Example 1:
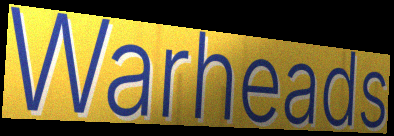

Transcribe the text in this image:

Warheads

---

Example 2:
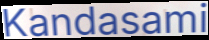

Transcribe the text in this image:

Kandasami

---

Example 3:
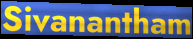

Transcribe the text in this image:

Sivanantham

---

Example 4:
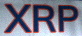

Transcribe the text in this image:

XRP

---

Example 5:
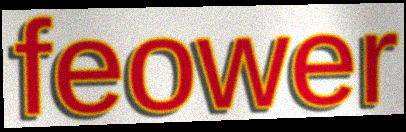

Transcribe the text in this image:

feower